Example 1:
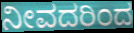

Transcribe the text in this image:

ನೀವದರಿಂದ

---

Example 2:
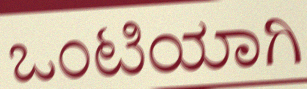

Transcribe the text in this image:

ಒಂಟಿಯಾಗಿ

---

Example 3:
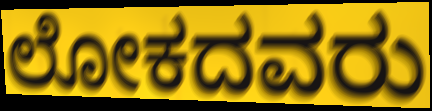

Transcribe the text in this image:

ಲೋಕದವರು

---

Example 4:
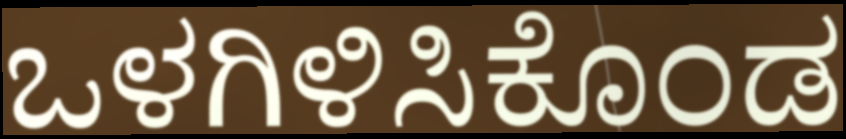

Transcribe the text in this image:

ಒಳಗಿಳಿಸಿಕೊಂಡ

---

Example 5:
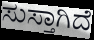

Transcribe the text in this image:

ಸುಸ್ತಾಗಿದೆ